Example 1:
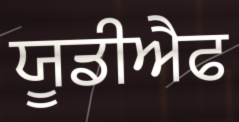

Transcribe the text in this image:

ਯੂਡੀਐਫ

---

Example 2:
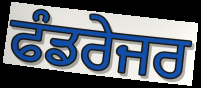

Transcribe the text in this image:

ਫੰਡਰੇਜਰ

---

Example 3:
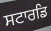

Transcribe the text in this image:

ਸਟਾਰਡਿ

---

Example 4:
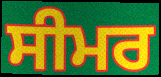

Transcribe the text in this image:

ਸੀਮਰ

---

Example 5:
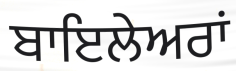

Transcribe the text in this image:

ਬਾਇਲੇਅਰਾਂ